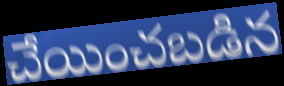
చేయించబడిన